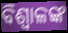
ବିଶ୍ୱାଳଙ୍କ